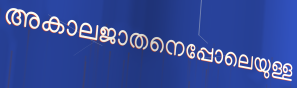
അകാലജാതനെപ്പോലെയുള്ള